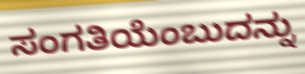
ಸಂಗತಿಯೆಂಬುದನ್ನು